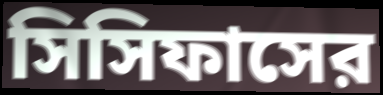
সিসিফাসের